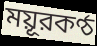
ময়ূরকণ্ঠ